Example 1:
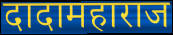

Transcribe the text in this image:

दादामहाराज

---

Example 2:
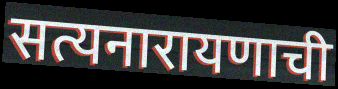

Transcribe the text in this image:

सत्यनारायणाची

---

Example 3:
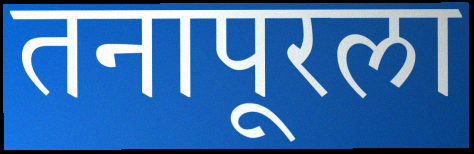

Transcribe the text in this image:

तनापूरला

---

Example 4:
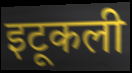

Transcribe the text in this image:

इटूकली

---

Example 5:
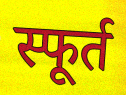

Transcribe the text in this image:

स्फूर्त